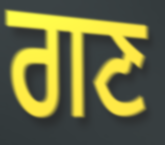
ਗਣ